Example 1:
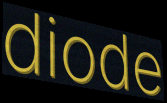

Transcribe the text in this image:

diode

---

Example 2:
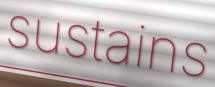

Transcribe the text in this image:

sustains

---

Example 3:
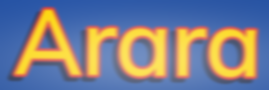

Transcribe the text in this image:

Arara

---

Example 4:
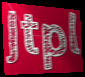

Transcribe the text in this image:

Jtpl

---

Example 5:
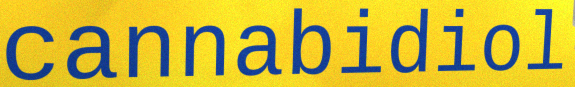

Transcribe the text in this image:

cannabidiol